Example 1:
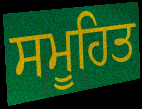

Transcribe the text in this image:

ਸਮੂਹਿਤ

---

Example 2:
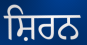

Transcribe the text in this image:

ਸ਼ਿਰਨ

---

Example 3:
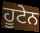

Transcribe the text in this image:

ਹੂਟੇਨ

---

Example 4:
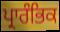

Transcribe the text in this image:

ਪ੍ਰਾਰੰਭਿਕ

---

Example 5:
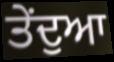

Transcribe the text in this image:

ਤੇਂਦੁਆ